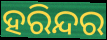
ହରିନ୍ଦର